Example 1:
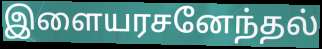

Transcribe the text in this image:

இளையரசனேந்தல்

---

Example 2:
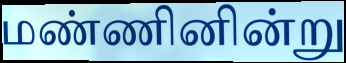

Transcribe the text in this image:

மண்ணினின்று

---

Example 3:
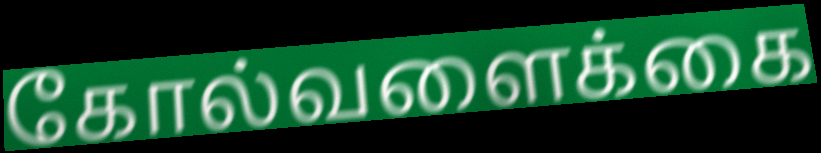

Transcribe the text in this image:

கோல்வளைக்கை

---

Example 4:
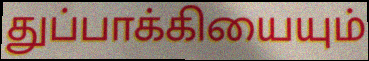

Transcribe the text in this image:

துப்பாக்கியையும்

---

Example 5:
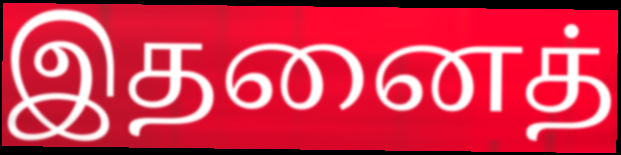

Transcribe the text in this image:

இதனைத்